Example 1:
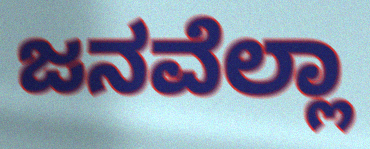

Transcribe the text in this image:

ಜನವೆಲ್ಲಾ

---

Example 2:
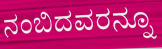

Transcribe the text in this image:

ನಂಬಿದವರನ್ನೂ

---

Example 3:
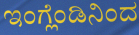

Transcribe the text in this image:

ಇಂಗ್ಲೆಂಡಿನಿಂದ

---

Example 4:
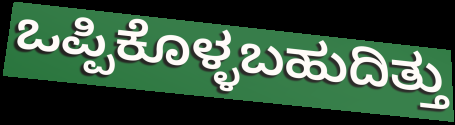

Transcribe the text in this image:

ಒಪ್ಪಿಕೊಳ್ಳಬಹುದಿತ್ತು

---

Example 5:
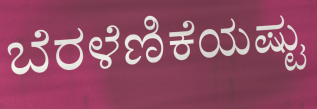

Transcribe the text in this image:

ಬೆರಳೆಣಿಕೆಯಷ್ಟು